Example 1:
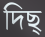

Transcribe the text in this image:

দিছ্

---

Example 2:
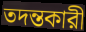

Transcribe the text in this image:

তদন্তকারী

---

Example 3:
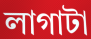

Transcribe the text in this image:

লাগাটা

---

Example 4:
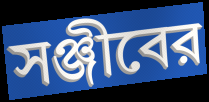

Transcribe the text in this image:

সঞ্জীবের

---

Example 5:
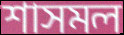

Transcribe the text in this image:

শাসমল